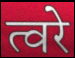
त्वरे